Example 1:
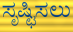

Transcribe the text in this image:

ಸೃಷ್ಟಿಸಲು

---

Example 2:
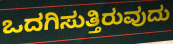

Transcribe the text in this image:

ಒದಗಿಸುತ್ತಿರುವುದು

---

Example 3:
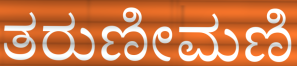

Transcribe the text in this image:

ತರುಣೀಮಣಿ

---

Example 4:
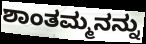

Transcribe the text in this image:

ಶಾಂತಮ್ಮನನ್ನು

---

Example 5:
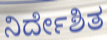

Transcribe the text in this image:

ನಿರ್ದೇಶಿತ